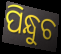
ପିନ୍ଧୁଚ